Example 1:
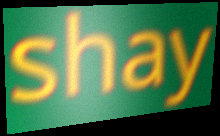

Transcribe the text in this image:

shay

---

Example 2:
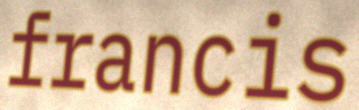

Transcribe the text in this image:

francis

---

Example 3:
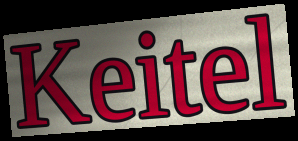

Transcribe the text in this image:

Keitel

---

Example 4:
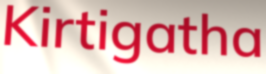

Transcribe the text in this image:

Kirtigatha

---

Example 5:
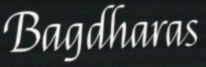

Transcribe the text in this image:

Bagdharas